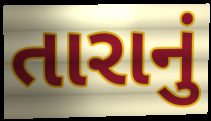
તારાનું